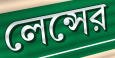
লেন্সের